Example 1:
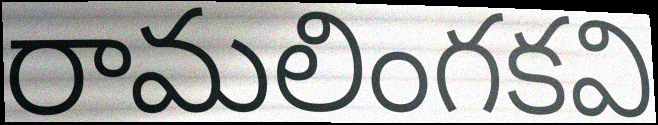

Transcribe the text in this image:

రామలింగకవి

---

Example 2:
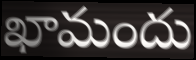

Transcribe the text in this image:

ఖామందు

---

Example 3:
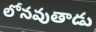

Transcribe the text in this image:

లోనవుతాడు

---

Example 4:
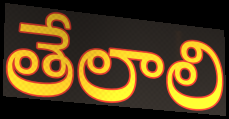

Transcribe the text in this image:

తేలాలి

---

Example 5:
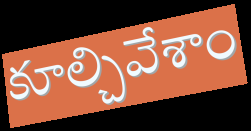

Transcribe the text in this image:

కూల్చివేశాం